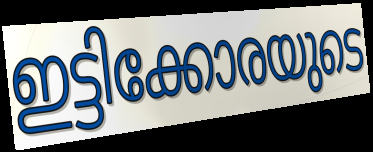
ഇട്ടിക്കോരയുടെ